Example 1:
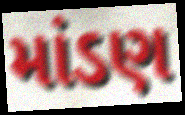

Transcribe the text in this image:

માંડણ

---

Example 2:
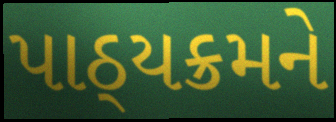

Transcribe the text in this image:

પાઠ્યક્રમને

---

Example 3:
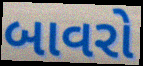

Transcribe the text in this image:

બાવરો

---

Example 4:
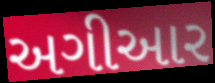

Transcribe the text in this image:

અગીઆર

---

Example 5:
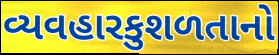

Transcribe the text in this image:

વ્યવહારકુશળતાનો